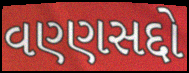
વણ્ણસદ્દો